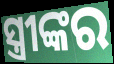
ସ୍ତ୍ରୀଙ୍କର